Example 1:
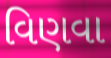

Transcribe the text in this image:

વિણવા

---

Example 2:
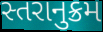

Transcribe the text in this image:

સ્તરાનુક્રમ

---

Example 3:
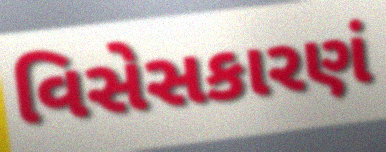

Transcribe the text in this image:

વિસેસકારણં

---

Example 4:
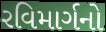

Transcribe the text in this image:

રવિમાર્ગનો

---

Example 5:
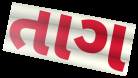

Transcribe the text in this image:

તાગ